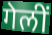
गेलीं